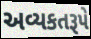
અવ્યકતરૂપે